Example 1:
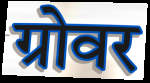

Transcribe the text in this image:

ग्रोवर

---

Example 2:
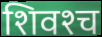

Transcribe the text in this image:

शिवश्च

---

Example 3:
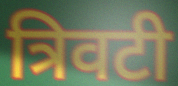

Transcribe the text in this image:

त्रिवटी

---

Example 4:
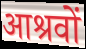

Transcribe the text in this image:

आश्रवों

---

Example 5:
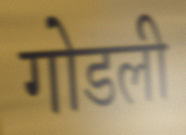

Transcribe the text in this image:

गोडली